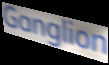
Ganglion